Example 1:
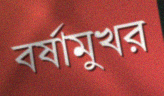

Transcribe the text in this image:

বর্ষামুখর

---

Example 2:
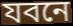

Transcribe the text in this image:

যবনে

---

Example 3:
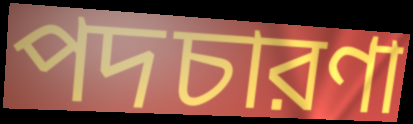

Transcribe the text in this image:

পদচারণা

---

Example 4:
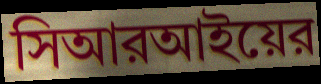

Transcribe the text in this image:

সিআরআইয়ের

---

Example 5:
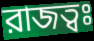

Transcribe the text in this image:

রাজত্বঃ